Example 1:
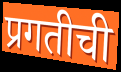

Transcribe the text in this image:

प्रगतीची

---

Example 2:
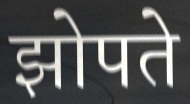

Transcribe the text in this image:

झोपते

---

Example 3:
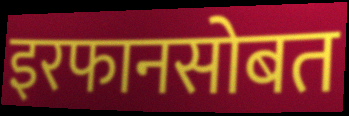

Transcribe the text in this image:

इरफानसोबत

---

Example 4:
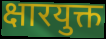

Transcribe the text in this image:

क्षारयुक्त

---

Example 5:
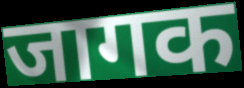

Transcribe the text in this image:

जागक